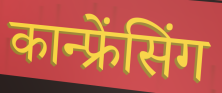
कान्फ्रेंसिंग